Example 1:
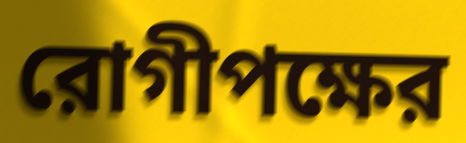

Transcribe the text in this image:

রোগীপক্ষের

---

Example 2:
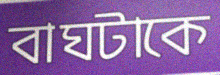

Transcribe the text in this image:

বাঘটাকে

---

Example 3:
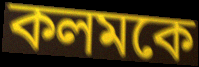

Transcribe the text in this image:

কলমকে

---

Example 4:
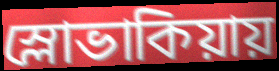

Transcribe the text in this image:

স্লোভাকিয়ায়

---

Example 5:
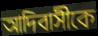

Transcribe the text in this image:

আদিবাসীকে